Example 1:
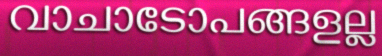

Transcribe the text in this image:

വാചാടോപങ്ങളല്ല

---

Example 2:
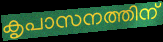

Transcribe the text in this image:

കൃപാസനത്തിന്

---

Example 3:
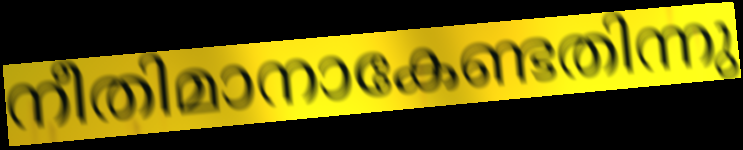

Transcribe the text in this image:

നീതിമാനാകേണ്ടതിന്നു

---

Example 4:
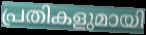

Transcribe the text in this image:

പ്രതികളുമായി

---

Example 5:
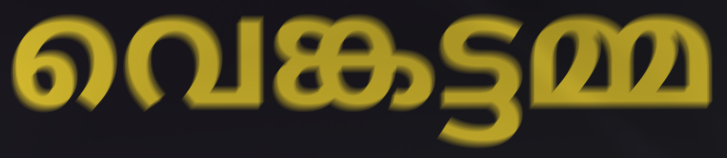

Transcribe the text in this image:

വെങ്കട്ടമ്മ